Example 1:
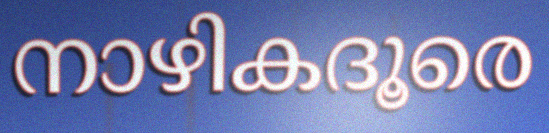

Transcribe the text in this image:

നാഴികദൂരെ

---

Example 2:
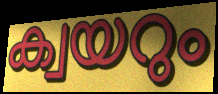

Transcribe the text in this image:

ക്വയറും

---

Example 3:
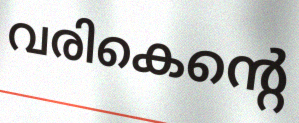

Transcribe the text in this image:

വരികെന്റെ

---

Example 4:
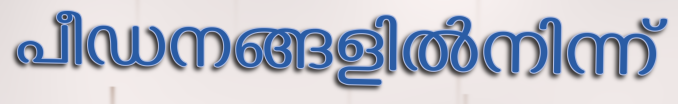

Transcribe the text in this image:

പീഡനങ്ങളിൽനിന്ന്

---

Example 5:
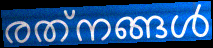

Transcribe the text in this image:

രത്‌നങ്ങൾ